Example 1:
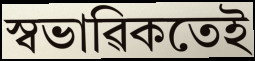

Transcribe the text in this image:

স্বভাৱিকতেই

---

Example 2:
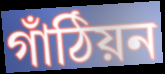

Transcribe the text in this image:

গাঁঠিয়ন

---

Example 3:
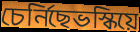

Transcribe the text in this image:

চেৰ্নিছেভস্কিয়ে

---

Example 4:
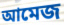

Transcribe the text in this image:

আমেজ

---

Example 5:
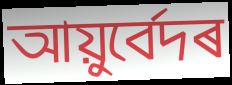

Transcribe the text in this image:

আয়ুৰ্বেদৰ